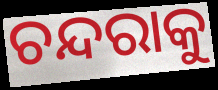
ଚନ୍ଦରାକୁ